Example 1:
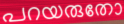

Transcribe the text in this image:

പറയരുതോ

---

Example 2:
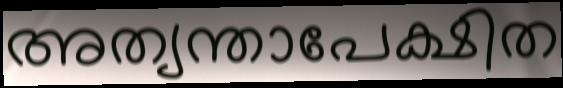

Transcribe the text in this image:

അത്യന്താപേക്ഷിത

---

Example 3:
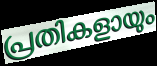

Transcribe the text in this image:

പ്രതികളായും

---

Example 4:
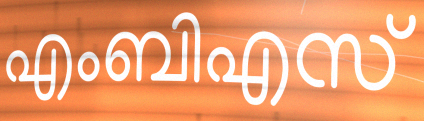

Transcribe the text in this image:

എംബിഎസ്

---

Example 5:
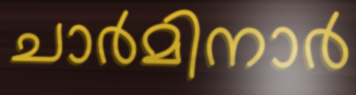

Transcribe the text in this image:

ചാർമിനാർ